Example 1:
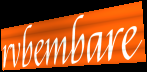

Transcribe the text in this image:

rvbembare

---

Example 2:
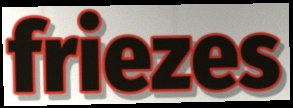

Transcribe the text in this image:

friezes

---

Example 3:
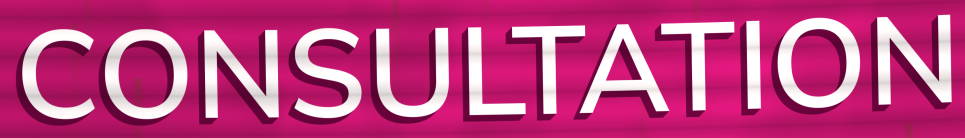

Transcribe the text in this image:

CONSULTATION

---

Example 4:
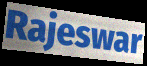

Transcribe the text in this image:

Rajeswar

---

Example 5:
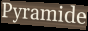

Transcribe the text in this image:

Pyramide